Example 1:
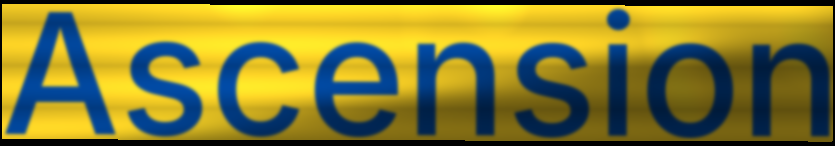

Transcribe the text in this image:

Ascension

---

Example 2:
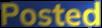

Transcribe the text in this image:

Posted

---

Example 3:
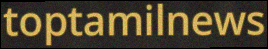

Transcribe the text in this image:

toptamilnews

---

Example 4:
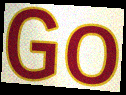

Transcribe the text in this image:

Go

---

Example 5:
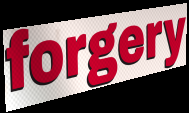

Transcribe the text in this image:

forgery